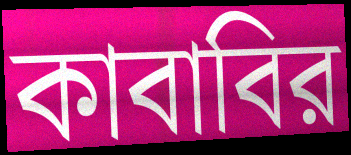
কাবাবির